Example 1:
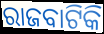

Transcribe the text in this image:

ରାଜବାଟିକି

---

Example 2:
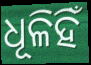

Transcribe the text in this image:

ଧୂଳିହିଁ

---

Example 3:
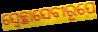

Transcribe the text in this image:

ସ୍ଵେଚ୍ଛାସେବୀରୂପେ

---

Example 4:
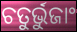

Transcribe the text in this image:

ଚତୁର୍ଭୁଜାଂ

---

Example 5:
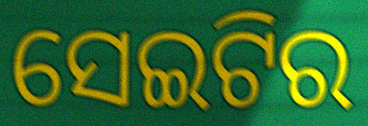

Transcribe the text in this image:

ସେଇଟିର